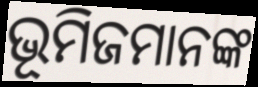
ଭୂମିଜମାନଙ୍କ